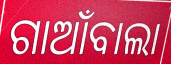
ଗାଆଁବାଲା